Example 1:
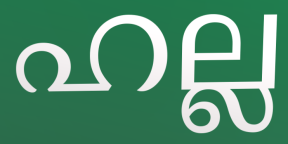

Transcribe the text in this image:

ഹല്ല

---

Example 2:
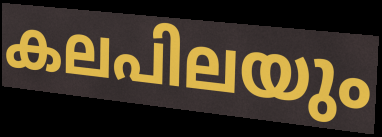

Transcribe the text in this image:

കലപിലയും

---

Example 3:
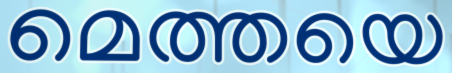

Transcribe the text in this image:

മെത്തയെ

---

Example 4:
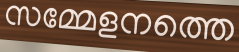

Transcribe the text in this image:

സമ്മേളനത്തെ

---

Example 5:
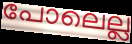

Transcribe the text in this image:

പോലെല്ല